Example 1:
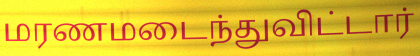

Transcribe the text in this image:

மரணமடைந்துவிட்டார்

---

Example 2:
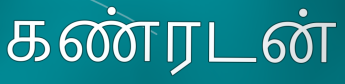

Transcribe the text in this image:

கண்ரடன்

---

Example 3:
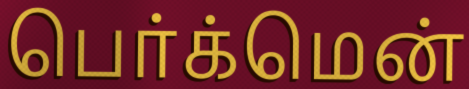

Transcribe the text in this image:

பெர்க்மென்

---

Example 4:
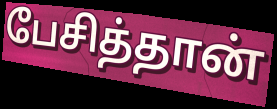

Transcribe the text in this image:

பேசித்தான்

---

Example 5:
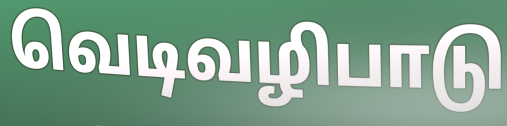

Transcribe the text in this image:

வெடிவழிபாடு